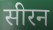
सीरन